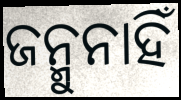
ଜନ୍ମୁନାହିଁ